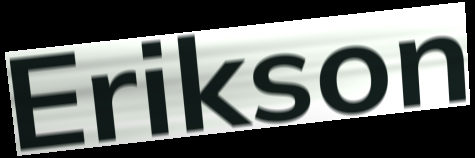
Erikson